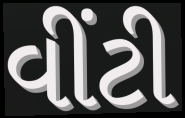
વીંટી